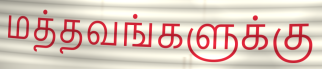
மத்தவங்களுக்கு